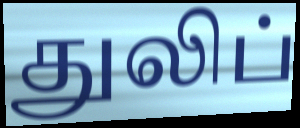
துலிப்